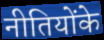
नीतियोंके